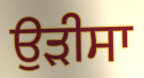
ਉਡ਼ੀਸਾ